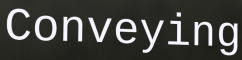
Conveying